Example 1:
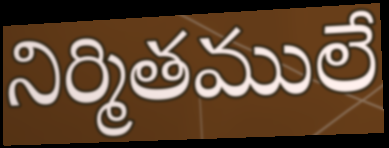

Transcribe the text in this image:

నిర్మితములే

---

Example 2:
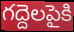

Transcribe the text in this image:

గద్దెలపైకి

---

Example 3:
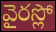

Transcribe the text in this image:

వైరస్లో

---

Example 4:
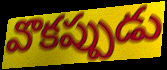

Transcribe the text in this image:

వొకప్పుడు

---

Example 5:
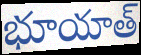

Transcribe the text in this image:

భూయాత్